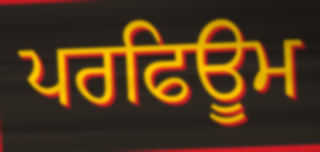
ਪਰਫਿਊਮ